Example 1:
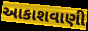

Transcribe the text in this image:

આકાશવાણી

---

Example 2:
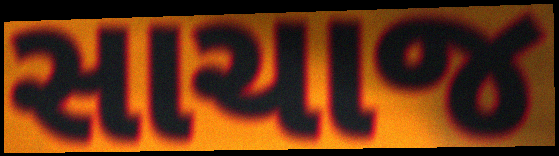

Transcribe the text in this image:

સાચાજ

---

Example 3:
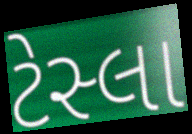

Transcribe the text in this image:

ટેસ્લા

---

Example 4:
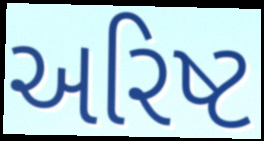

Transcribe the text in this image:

અરિષ્ટ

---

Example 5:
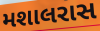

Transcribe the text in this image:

મશાલરાસ